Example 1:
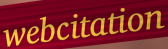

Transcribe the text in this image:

webcitation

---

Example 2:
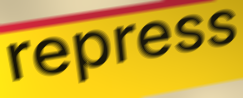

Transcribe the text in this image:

repress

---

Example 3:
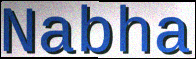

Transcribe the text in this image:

Nabha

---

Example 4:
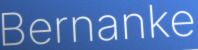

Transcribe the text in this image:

Bernanke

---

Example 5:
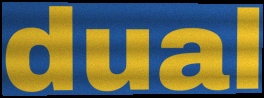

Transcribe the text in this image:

dual